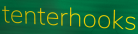
tenterhooks